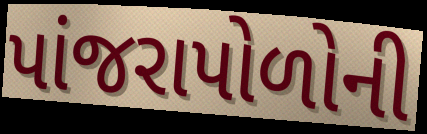
પાંજરાપોળોની